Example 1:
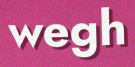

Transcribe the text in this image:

wegh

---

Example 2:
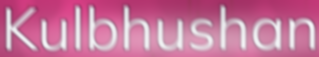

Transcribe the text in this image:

Kulbhushan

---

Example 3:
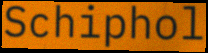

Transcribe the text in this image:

Schiphol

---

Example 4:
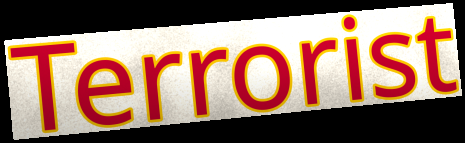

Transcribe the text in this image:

Terrorist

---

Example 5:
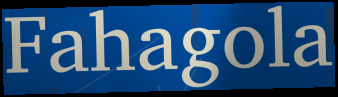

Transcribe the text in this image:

Fahagola